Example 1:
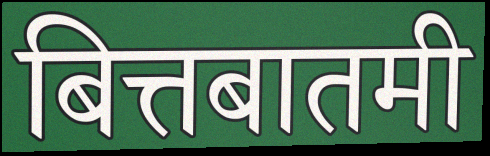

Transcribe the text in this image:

बित्तबातमी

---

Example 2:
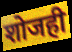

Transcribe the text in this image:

शोजही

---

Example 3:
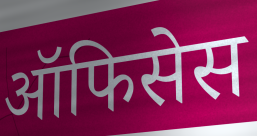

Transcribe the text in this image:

ऑफिसेस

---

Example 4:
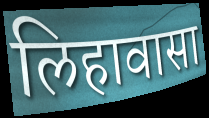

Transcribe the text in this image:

लिहावासा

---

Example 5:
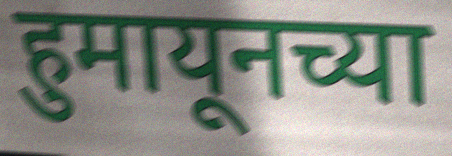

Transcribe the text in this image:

हुमायूनच्या